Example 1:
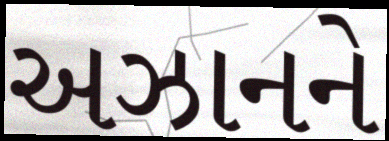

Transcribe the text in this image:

અઝાનને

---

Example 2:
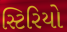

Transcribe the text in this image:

સ્ટિરિયો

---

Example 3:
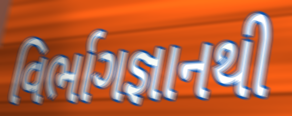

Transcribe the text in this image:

વિર્ભાગજ્ઞાનથી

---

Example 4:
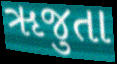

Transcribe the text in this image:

ૠજુતા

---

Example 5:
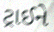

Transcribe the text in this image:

ટ્રાઈને